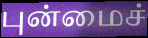
புன்மைச்